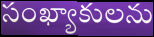
సంఖ్యాకులను